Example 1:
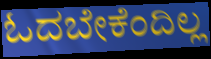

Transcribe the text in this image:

ಓದಬೇಕೆಂದಿಲ್ಲ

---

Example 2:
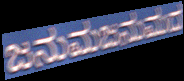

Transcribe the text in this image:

ಜನುಮಜನುಮದ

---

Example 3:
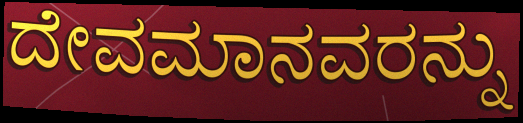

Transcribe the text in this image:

ದೇವಮಾನವರನ್ನು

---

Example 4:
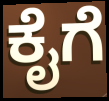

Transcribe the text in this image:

ಕೈಗೆ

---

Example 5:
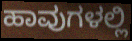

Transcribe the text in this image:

ಹಾವುಗಳಲ್ಲಿ